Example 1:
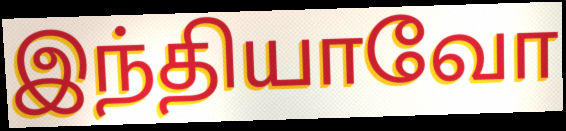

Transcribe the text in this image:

இந்தியாவோ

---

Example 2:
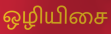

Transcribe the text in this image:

ஒழியிசை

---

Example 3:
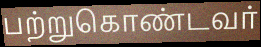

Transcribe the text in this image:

பற்றுகொண்டவர்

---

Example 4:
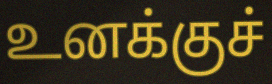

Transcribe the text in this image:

உனக்குச்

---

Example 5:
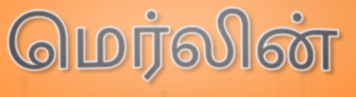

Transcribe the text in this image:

மெர்லின்